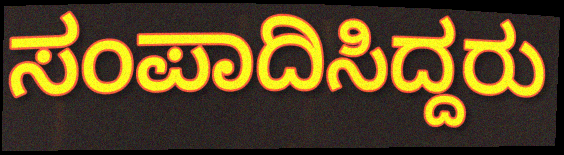
ಸಂಪಾದಿಸಿದ್ದರು